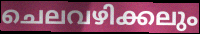
ചെലവഴിക്കലും